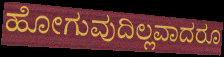
ಹೋಗುವುದಿಲ್ಲವಾದರೂ